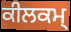
ਕੀਲਕਮ੍